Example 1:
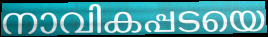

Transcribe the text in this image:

നാവികപ്പടയെ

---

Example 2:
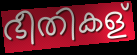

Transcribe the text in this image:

ഭീതികള്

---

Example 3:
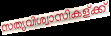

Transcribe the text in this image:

സത്യവിശ്വാസികള്ക്ക്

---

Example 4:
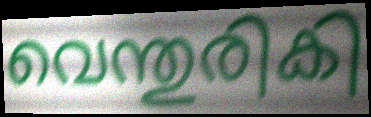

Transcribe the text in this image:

വെന്തുരികി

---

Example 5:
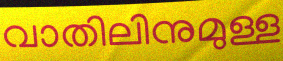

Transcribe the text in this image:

വാതിലിനുമുള്ള